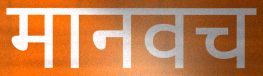
मानवच